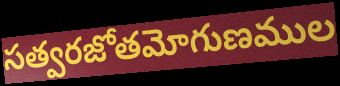
సత్వరజోతమోగుణముల